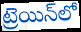
ట్రెయిన్‌లో